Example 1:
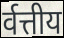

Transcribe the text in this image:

र्वत्तीय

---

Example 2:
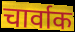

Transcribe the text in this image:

चार्वाक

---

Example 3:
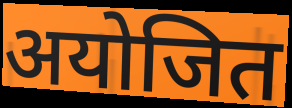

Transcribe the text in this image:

अयोजित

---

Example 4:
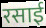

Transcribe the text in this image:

रसाई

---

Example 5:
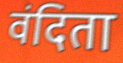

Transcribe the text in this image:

वंदिता